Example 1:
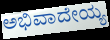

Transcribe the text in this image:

ಅಭಿವಾದೇಯ್ಯ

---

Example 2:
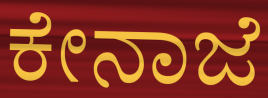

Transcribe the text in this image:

ಕೇನಾಜೆ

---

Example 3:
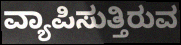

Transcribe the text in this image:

ವ್ಯಾಪಿಸುತ್ತಿರುವ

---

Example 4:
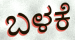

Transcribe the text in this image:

ಬಳಕೆ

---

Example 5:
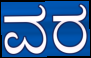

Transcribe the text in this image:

ವರ